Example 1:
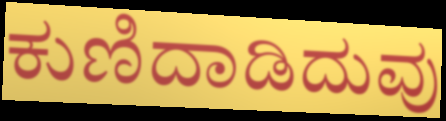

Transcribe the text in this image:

ಕುಣಿದಾಡಿದುವು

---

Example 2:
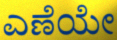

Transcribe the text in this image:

ಎಣೆಯೇ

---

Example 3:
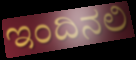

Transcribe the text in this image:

ಇಂದಿನಲಿ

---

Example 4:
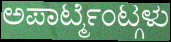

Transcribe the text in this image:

ಅಪಾರ್ಟ್ಮೆಂಟ್ಗಳು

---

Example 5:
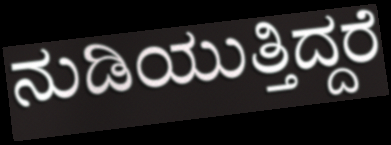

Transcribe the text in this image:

ನುಡಿಯುತ್ತಿದ್ದರೆ